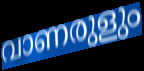
വാണരുളും